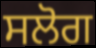
ਸਲੋਗ